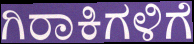
ಗಿರಾಕಿಗಳಿಗೆ